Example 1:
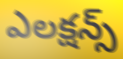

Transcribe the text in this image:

ఎలక్షన్స్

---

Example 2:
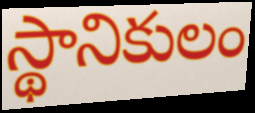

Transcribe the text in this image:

స్థానికులం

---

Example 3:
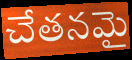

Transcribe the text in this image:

చేతనమై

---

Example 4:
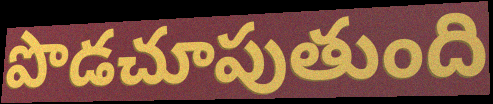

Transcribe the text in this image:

పొడచూపుతుంది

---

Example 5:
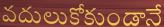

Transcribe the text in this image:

వదులుకోకుండానే